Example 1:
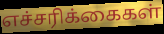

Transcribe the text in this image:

எச்சரிக்கைகள்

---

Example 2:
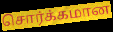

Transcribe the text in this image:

சொர்க்கமான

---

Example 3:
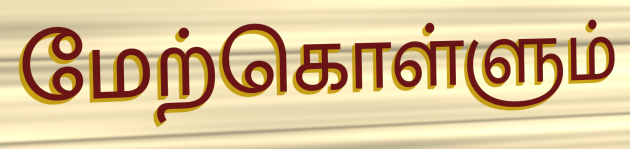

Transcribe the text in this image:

மேற்கொள்ளும்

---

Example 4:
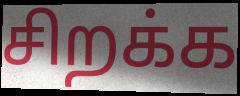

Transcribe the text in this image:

சிறக்க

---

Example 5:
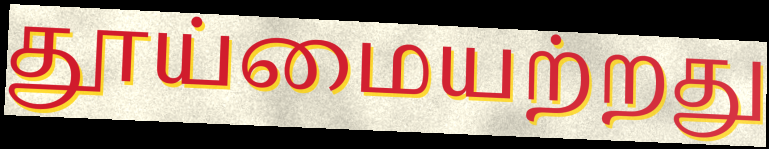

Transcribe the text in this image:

தூய்மையற்றது